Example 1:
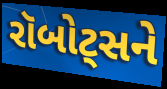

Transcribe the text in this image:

રૉબોટ્સને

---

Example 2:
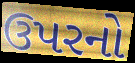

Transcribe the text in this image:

ઉપરનો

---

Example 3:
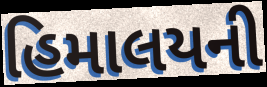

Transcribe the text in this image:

હિમાલયની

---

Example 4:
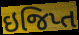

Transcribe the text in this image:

ઇજિપ્ત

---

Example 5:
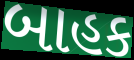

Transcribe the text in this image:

બાહક